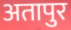
अतापुर